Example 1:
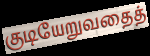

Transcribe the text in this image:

குடியேறுவதைத்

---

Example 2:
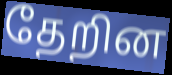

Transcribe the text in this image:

தேறின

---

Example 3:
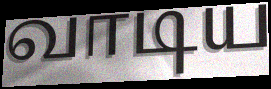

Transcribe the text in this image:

வாடிய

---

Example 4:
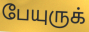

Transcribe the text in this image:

பேயுருக்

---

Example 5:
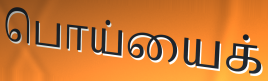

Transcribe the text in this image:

பொய்யைக்